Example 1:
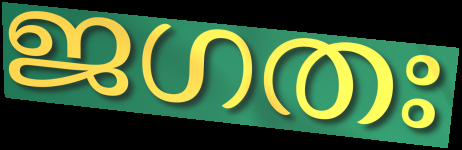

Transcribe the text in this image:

ജഗതഃ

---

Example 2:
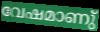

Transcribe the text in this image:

വേഷമാണു്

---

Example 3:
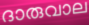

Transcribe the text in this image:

ദാരുവാല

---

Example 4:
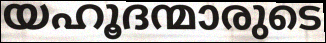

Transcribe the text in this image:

യഹൂദന്മാരുടെ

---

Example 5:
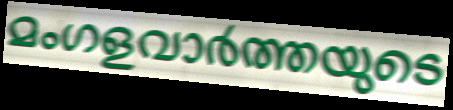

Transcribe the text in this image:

മംഗളവാർത്തയുടെ